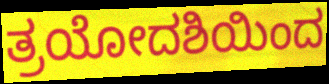
ತ್ರಯೋದಶಿಯಿಂದ